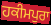
ਹਕੀਮਪੁਰਾ